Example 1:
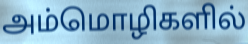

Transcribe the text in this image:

அம்மொழிகளில்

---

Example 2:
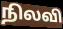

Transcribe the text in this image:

நிலவி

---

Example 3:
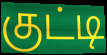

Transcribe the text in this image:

குட்டி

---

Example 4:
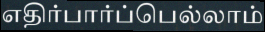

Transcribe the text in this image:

எதிர்பார்ப்பெல்லாம்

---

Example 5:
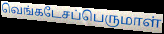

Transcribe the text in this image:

வெங்கடேசப்பெருமாள்